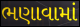
ભણાવામાં